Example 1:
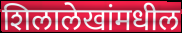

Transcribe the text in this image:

शिलालेखांमधील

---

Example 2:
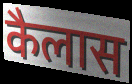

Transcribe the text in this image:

कैलास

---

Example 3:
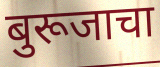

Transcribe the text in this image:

बुरूजाचा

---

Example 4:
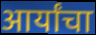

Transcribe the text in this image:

आर्यांचा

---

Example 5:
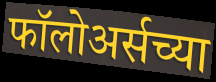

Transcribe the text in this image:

फॉलोअर्सच्या